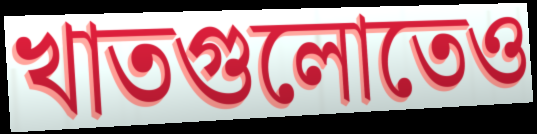
খাতগুলোতেও